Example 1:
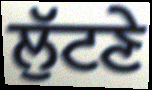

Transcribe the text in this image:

ਲੁੱਟਣੇ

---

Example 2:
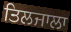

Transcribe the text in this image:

ਤਿਲਜਾਲਾ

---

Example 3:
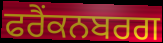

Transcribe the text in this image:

ਫਰੈਂਕਨਬਰਗ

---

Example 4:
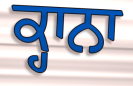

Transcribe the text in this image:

ਕ੍ਹਾਨਾ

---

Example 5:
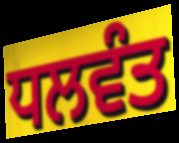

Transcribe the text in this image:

ਧਲਵੰਤ